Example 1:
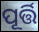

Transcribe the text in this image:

ପୂର୍ତ୍ତି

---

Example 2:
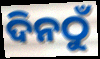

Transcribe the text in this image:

ଦିନଠୁଁ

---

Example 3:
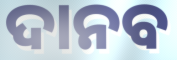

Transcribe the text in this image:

ଦାନବ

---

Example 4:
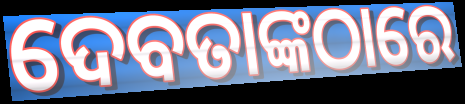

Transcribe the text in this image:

ଦେବତାଙ୍କଠାରେ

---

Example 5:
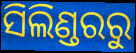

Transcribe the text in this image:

ସିଲିଣ୍ଡରରୁ